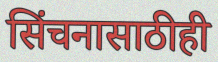
सिंचनासाठीही